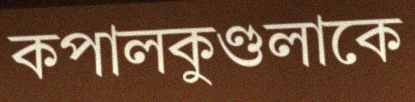
কপালকুণ্ডলাকে